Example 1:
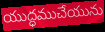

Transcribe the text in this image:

యుద్ధముచేయును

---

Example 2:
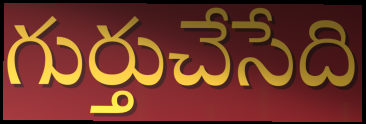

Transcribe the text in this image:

గుర్తుచేసేది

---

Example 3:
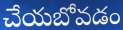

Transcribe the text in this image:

చేయబోవడం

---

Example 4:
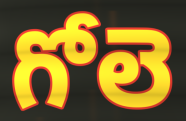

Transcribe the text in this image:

గోలె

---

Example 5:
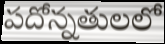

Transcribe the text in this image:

పదోన్నతులలో